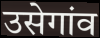
उसेगांव